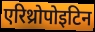
एरिथ्रोपोइटिन